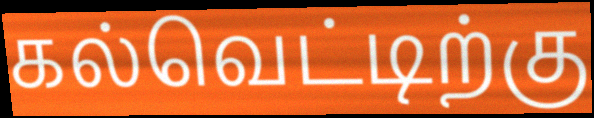
கல்வெட்டிற்கு